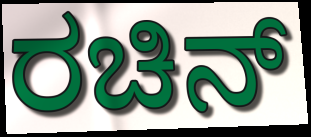
ರಚಿನ್